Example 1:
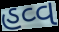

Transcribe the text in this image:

હવ્વ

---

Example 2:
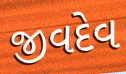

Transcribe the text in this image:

જીવદેવ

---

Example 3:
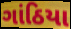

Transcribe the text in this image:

ગાંઠિયા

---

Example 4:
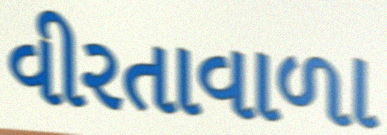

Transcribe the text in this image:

વીરતાવાળા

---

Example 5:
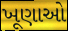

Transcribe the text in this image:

ખૂણાઓ